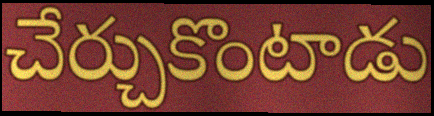
చేర్చుకొంటాడు